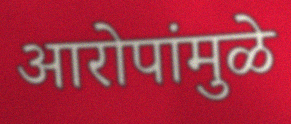
आरोपांमुळे